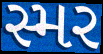
સ્મર